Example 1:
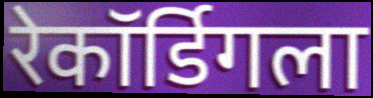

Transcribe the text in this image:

रेकॉर्डिगला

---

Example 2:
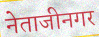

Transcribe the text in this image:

नेताजीनगर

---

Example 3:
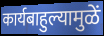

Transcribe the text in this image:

कार्यबाहुल्यामुळें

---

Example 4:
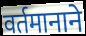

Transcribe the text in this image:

वर्तमानाने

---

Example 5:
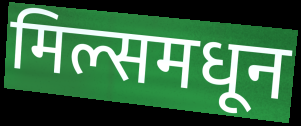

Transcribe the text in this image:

मिल्समधून